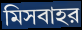
মিসবাহর